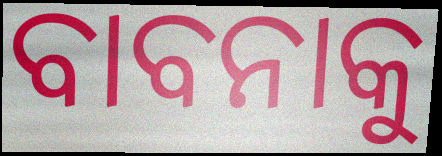
ବାବନାକୁ